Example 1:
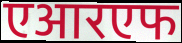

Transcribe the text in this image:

एआरएफ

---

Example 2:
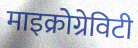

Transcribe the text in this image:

माइक्रोग्रेविटी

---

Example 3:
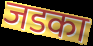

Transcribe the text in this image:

जडका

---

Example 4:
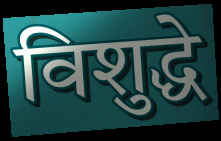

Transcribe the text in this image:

विशुद्धे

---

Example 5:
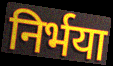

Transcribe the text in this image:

निर्भया